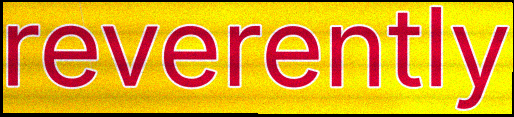
reverently